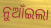
ନୁଆଁଇଲା